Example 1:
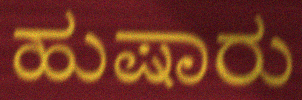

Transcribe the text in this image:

ಹುಷಾರು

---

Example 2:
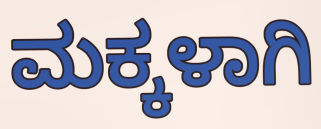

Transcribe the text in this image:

ಮಕ್ಕಳಾಗಿ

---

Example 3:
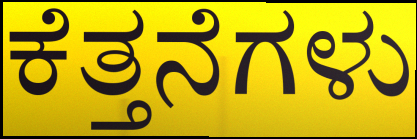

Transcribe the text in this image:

ಕೆತ್ತನೆಗಳು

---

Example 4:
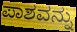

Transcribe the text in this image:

ಪಾಶವನ್ನು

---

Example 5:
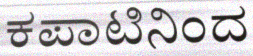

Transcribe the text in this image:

ಕಪಾಟಿನಿಂದ